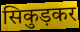
सिकुड़कर